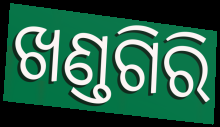
ଖଣ୍ଡଗିରି